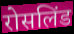
रोसलिंड